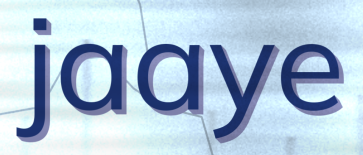
jaaye